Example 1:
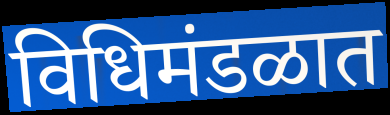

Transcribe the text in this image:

विधिमंडळात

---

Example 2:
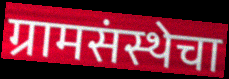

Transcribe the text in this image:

ग्रामसंस्थेचा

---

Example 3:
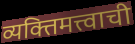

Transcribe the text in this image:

व्यक्तिमत्त्वाची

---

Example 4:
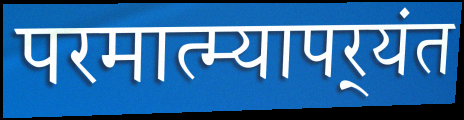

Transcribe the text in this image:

परमात्म्यापर्यंत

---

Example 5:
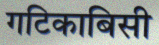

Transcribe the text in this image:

गटिकाबिसी